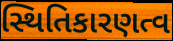
સ્થિતિકારણત્વ